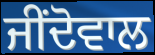
ਜੀਂਦੋਵਾਲ